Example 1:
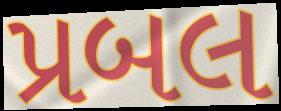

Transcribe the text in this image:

પ્રબલ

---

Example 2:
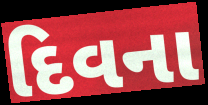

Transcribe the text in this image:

દિવના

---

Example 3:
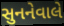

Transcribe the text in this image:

સુનનેવાલે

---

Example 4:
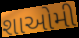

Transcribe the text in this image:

શાઓમી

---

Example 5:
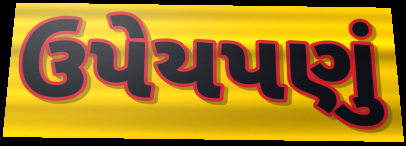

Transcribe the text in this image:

ઉપેયપણું